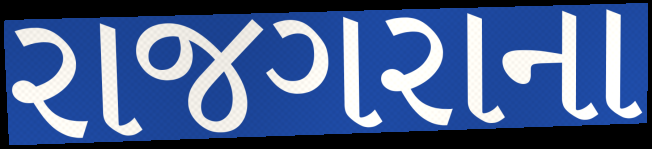
રાજગરાના